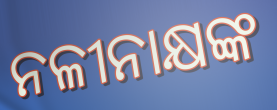
ନଳୀନାକ୍ଷଙ୍କ